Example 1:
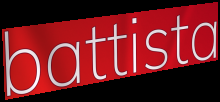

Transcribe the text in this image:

battista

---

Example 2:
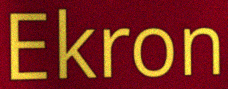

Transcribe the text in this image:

Ekron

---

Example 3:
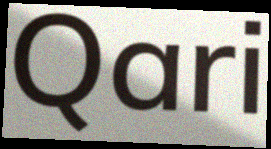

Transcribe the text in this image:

Qari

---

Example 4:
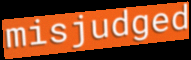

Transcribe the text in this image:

misjudged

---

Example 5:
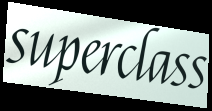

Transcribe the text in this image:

superclass